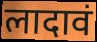
लादावं